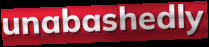
unabashedly